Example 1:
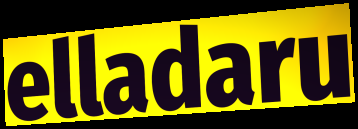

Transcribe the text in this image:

elladaru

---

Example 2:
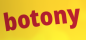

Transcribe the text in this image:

botony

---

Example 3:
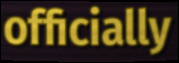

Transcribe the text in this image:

officially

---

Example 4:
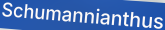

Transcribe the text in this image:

Schumannianthus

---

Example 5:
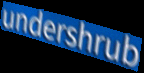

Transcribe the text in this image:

undershrub